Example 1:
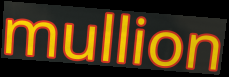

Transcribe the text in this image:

mullion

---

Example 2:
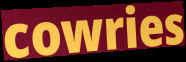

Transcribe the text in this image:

cowries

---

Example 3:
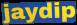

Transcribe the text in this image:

jaydip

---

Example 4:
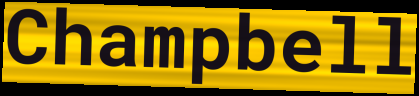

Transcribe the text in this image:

Champbell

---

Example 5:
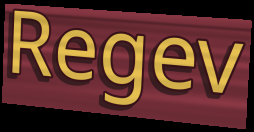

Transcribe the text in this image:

Regev